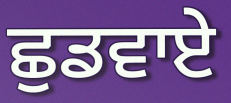
ਛੁਡਵਾਏ